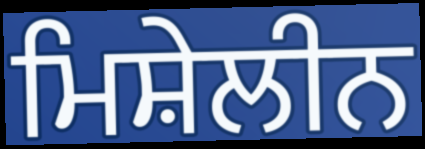
ਮਿਸ਼ੇਲੀਨ